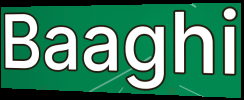
Baaghi